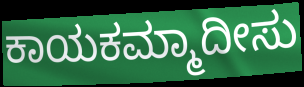
ಕಾಯಕಮ್ಮಾದೀಸು